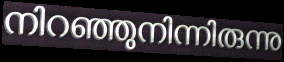
നിറഞ്ഞുനിന്നിരുന്നു